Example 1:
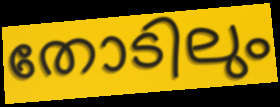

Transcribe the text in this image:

തോടിലും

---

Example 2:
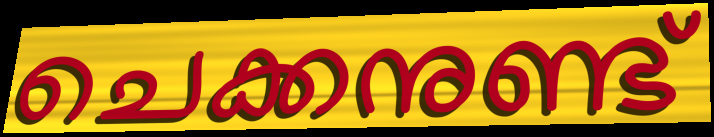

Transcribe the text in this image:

ചെക്കനുണ്ട്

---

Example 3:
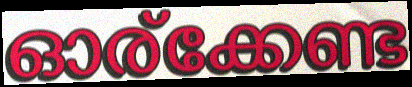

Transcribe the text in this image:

ഓര്ക്കേണ്ട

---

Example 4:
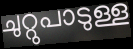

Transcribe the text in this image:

ചുറ്റുപാടുള്ള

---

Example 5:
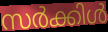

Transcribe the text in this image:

സർക്കിൾ